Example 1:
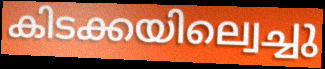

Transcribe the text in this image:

കിടക്കയില്വെച്ചു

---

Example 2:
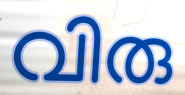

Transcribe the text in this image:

വിരു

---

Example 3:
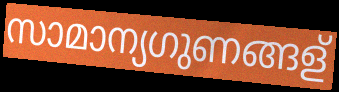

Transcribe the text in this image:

സാമാന്യഗുണങ്ങള്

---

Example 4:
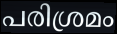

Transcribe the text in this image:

പരിശ്രമം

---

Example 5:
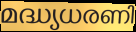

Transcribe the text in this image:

മദ്ധ്യധരണി